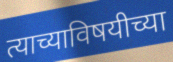
त्याच्याविषयीच्या